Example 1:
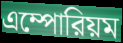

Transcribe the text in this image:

এম্পোরিয়ম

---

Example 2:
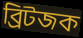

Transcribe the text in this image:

ব্রিটজক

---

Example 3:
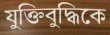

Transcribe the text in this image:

যুক্তিবুদ্ধিকে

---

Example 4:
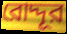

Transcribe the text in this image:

রোদ্দূর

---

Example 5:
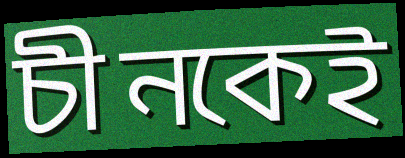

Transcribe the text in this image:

চীনকেই